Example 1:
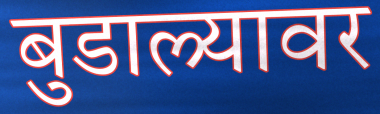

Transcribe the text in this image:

बुडाल्यावर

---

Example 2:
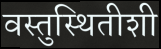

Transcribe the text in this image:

वस्तुस्थितीशी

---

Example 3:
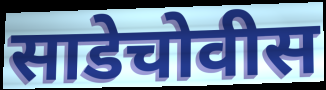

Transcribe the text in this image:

साडेचोवीस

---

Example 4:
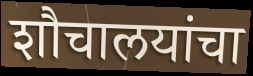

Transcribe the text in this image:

शौचालयांचा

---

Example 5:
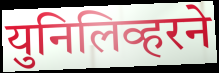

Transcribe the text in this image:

युनिलिव्हरने